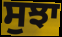
ਸੁਝਾ